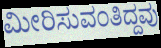
ಮೀರಿಸುವಂತಿದ್ದವು